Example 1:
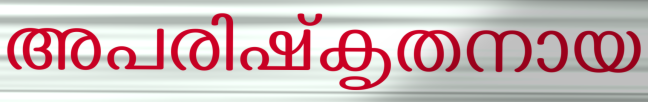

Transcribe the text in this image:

അപരിഷ്‌കൃതനായ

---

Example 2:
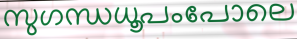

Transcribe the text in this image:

സുഗന്ധധൂപംപോലെ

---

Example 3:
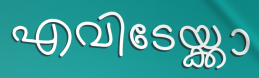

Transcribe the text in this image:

എവിടേയ്ക്കാ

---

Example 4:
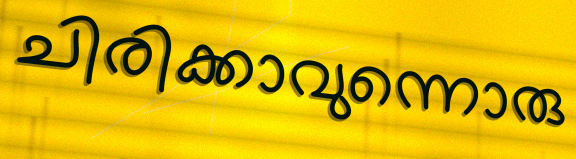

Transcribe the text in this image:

ചിരിക്കാവുന്നൊരു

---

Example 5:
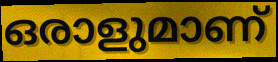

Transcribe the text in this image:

ഒരാളുമാണ്